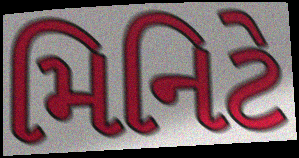
મિનિટે